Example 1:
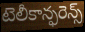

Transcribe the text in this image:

టెలీకాన్ఫరెన్స్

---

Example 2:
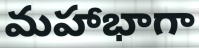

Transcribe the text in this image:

మహాభాగా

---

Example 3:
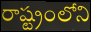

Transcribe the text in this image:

రాష్ట్రంలోని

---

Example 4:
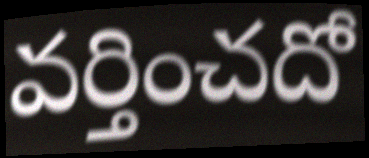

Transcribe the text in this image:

వర్తించదో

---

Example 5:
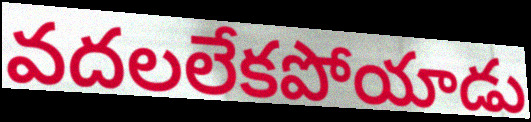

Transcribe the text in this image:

వదలలేకపోయాడు